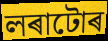
লৰাটোৰ